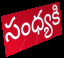
సంధ్యకి